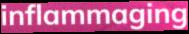
inflammaging